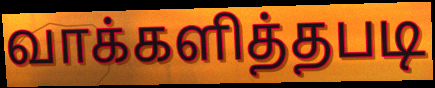
வாக்களித்தபடி